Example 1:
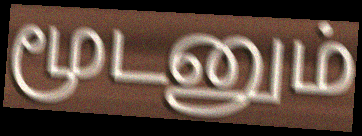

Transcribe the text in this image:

மூடனும்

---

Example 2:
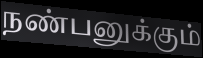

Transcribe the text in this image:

நண்பனுக்கும்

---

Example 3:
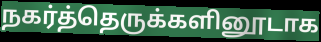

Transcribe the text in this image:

நகர்த்தெருக்களினூடாக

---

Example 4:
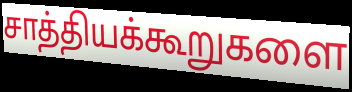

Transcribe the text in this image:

சாத்தியக்கூறுகளை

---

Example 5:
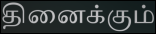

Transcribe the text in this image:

தினைக்கும்